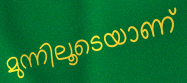
മുന്നിലൂടെയാണ്